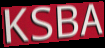
KSBA